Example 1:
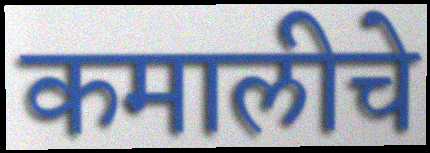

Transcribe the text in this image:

कमालीचे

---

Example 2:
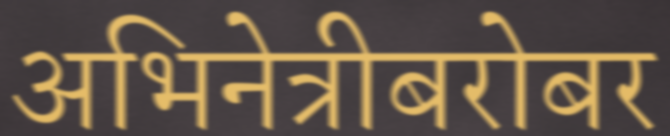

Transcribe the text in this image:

अभिनेत्रीबरोबर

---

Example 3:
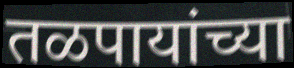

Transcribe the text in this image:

तळपायांच्या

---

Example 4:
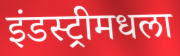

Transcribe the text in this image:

इंडस्ट्रीमधला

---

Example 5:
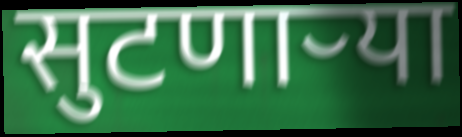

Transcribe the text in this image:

सुटणाऱ्या